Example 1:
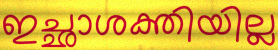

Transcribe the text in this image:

ഇച്ഛാശക്തിയില്ല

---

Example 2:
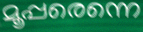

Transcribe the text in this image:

മൂപ്പരെന്നെ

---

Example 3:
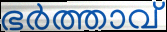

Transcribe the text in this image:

ഭർത്താവ്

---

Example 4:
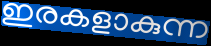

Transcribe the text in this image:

ഇരകളാകുന്ന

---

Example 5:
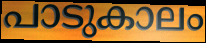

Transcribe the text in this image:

പാടുകാലം